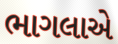
ભાગલાએ